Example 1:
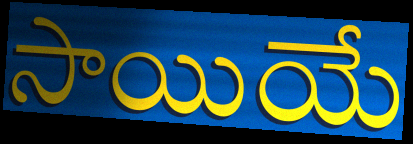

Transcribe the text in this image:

సాయియే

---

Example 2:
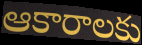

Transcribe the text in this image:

ఆకారాలకు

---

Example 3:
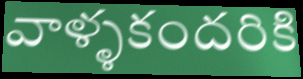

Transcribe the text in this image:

వాళ్ళకందరికి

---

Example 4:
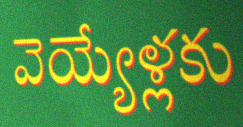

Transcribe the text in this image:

వెయ్యేళ్లకు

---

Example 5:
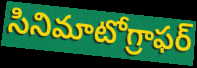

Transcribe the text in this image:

సినిమాటోగ్రాఫర్